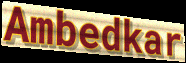
Ambedkar